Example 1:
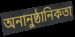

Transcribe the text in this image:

অনানুষ্ঠানিকতা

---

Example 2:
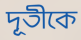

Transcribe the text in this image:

দূতীকে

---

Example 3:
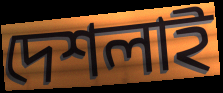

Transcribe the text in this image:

দেশলাই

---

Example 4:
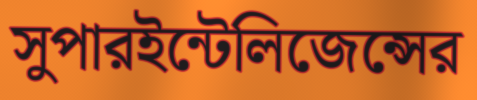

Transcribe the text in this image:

সুপারইন্টেলিজেন্সের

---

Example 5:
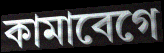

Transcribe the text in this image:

কামাবেগে